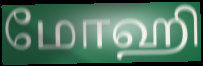
மோஹி